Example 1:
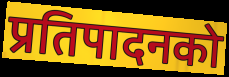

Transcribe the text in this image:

प्रतिपादनको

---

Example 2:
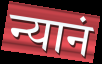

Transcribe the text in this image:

न्यानं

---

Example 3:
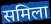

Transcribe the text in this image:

समिला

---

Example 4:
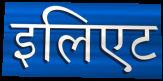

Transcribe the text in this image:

इलिएट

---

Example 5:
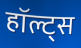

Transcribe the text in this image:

हॉल्ट्स